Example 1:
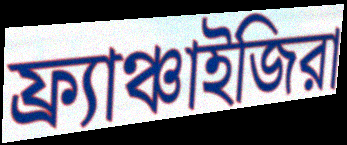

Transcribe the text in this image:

ফ্র্যাঞ্চাইজিরা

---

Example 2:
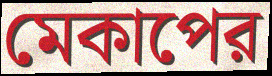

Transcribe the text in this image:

মেকাপের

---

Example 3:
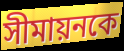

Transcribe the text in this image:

সীমায়নকে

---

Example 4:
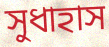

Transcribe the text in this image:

সুধাহাস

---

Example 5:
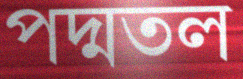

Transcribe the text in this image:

পদ্মতল